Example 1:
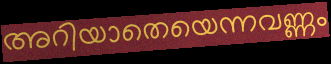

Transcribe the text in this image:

അറിയാതെയെന്നവണ്ണം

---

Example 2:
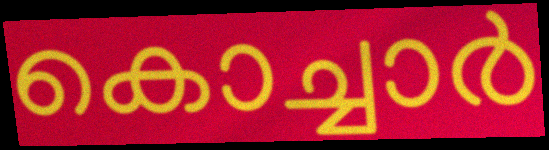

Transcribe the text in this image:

കൊച്ചാർ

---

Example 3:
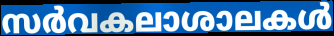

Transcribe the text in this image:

സർവകലാശാലകൾ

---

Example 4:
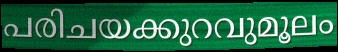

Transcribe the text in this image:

പരിചയക്കുറവുമൂലം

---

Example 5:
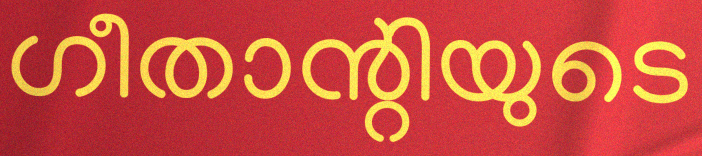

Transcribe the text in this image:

ഗീതാന്റിയുടെ